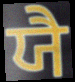
ਯੈ